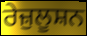
ਰੇਜ਼ੁਲੂਸ਼ਨ